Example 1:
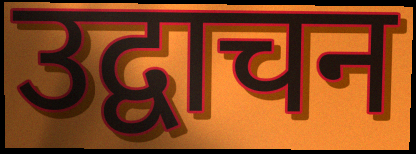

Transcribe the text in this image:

उद्वाचन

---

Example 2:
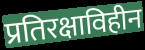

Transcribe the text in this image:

प्रतिरक्षाविहीन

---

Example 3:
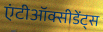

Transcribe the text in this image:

एंटीऑक्सीडेंट्स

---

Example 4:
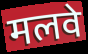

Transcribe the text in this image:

मलवे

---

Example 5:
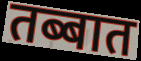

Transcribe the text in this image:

तब्बात